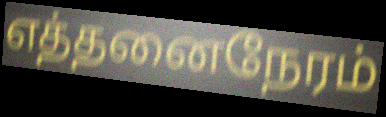
எத்தனைநேரம்